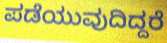
ಪಡೆಯುವುದಿದ್ದರೆ